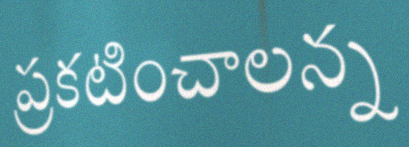
ప్రకటించాలన్న